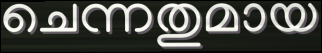
ചെന്നതുമായ